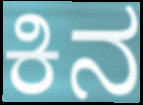
ಕಿನ